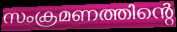
സംക്രമണത്തിന്റെ